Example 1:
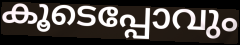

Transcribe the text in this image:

കൂടെപ്പോവും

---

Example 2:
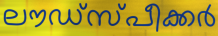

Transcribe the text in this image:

ലൗഡ്സ്പീക്കർ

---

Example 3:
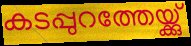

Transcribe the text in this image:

കടപ്പുറത്തേയ്ക്കു്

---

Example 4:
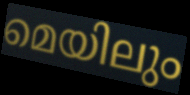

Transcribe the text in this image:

മെയിലും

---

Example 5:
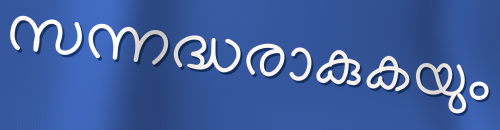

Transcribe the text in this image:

സന്നദ്ധരാകുകയും